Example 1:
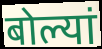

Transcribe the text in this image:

बोल्यां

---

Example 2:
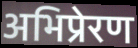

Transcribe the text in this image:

अभिप्रेरण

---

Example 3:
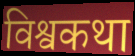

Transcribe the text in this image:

विश्वकथा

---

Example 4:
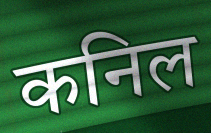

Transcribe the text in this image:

कनिल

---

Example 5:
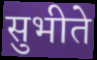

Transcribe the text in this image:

सुभीते